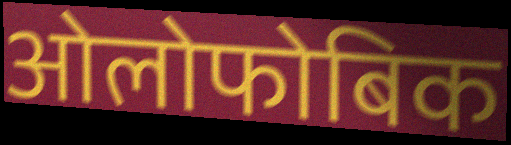
ओलोफोबिक